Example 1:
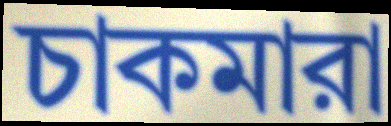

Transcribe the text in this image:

চাকমারা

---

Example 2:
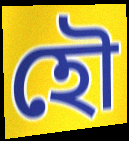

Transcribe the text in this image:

হৌ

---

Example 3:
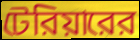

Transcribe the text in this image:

টেরিয়ারের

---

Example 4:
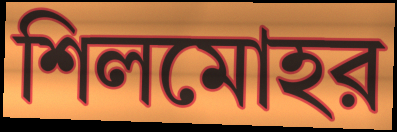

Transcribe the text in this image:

শিলমোহর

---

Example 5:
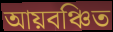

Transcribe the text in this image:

আয়বঞ্চিত